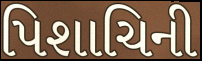
પિશાચિની